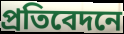
প্ৰতিবেদনে